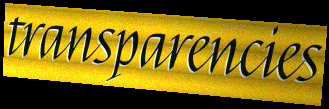
transparencies